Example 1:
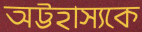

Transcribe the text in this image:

অট্টহাস্যকে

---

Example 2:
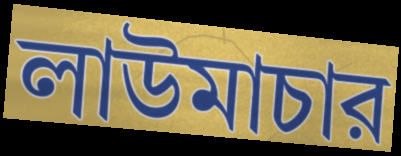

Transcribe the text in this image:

লাউমাচার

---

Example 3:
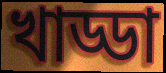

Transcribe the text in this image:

খাড্ডা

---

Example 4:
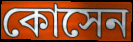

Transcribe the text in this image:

কোসেন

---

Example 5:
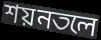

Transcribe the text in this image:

শয়নতলে